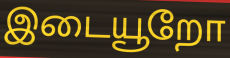
இடையூறோ